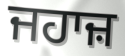
ਜਹਾਜ਼